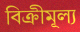
বিক্ৰীমূল্য